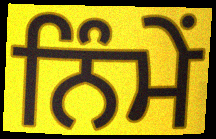
ਨਿੰਮੇਂ